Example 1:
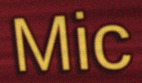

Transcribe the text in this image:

Mic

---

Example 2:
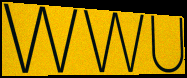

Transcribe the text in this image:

WWU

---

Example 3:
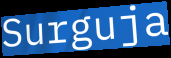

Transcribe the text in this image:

Surguja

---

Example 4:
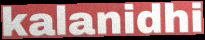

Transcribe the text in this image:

kalanidhi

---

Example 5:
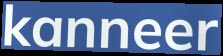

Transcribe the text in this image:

kanneer